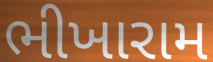
ભીખારામ